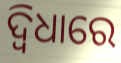
ଦ୍ୱିଧାରେ